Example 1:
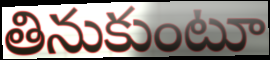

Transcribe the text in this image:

తినుకుంటూ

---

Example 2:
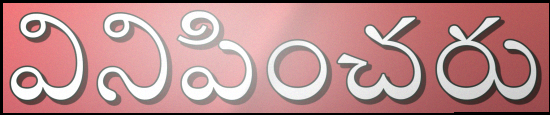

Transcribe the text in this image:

వినిపించరు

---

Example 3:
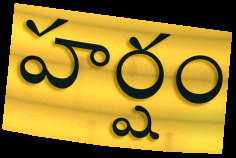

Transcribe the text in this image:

హర్షం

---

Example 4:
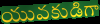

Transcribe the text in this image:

యువకుడిగా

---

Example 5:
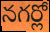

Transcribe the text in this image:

నగర్లో